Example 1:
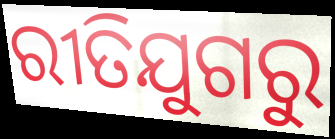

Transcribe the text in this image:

ରୀତିଯୁଗରୁ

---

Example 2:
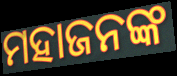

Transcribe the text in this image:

ମହାଜନଙ୍କ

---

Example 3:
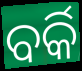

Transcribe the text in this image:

ବର୍କି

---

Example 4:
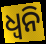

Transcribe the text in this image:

ଧ୍ବନି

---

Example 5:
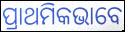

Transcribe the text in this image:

ପ୍ରାଥମିକଭାବେ